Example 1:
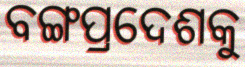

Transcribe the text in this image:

ବଙ୍ଗପ୍ରଦେଶକୁ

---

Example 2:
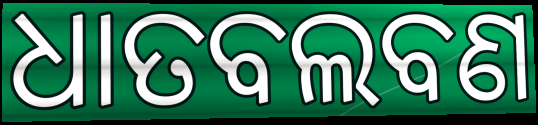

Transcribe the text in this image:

ଧାତବଲବଣ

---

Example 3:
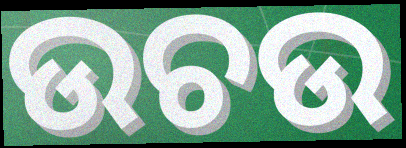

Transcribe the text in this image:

ଉଚଉ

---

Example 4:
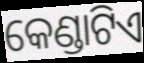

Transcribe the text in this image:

କେଣ୍ଡାଟିଏ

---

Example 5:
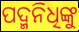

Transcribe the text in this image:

ପଦ୍ମନିଧିଙ୍କୁ